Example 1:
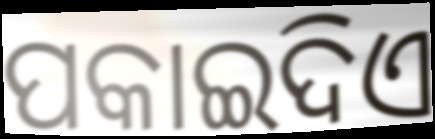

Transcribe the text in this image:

ପକାଇଦିଏ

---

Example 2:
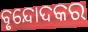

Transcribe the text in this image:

ବୃନ୍ଦୋଦକର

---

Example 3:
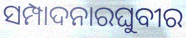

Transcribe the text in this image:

ସମ୍ପାଦନାରଘୁବୀର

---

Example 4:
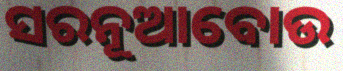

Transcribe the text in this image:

ସରନୂଆବୋଉ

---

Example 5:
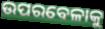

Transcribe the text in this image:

ଉପରବେଳାକୁ